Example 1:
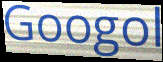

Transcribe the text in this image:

Googol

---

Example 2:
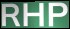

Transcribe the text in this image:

RHP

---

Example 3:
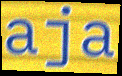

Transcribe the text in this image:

aja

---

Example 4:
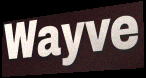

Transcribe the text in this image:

Wayve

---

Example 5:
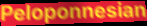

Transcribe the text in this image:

Peloponnesian